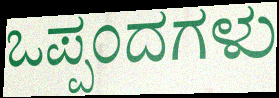
ಒಪ್ಪಂದಗಳು